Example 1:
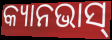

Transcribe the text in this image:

କ୍ୟାନଭାସ୍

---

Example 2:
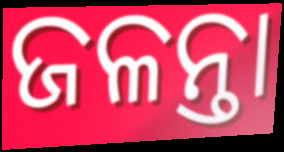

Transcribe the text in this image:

ଜଳନ୍ତା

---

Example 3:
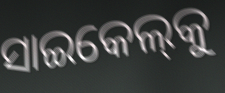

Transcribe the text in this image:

ସାଇକେଲ୍‌କୁ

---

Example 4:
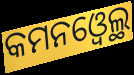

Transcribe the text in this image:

କମନଓ୍ବେଲ୍ଥ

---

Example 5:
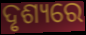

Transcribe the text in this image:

ଦୃଶ୍ୟରେ